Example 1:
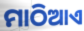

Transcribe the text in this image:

ମାଠିଆଏ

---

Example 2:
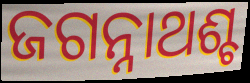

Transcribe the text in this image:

ଜଗନ୍ନାଥଶ୍ଚ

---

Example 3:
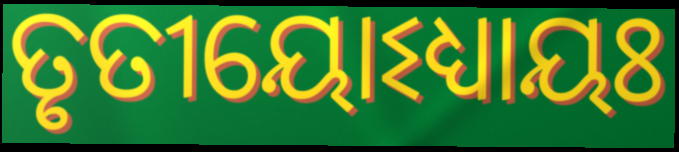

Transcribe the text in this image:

ତୃତୀୟୋଽଧ୍ୟାୟଃ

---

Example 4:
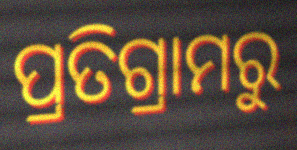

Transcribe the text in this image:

ପ୍ରତିଗ୍ରାମରୁ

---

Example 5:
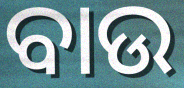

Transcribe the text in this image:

ବାଉ